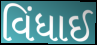
વિંધાઈ